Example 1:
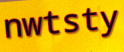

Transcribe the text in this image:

nwtsty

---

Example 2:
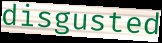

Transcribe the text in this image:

disgusted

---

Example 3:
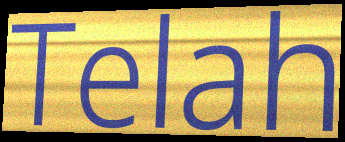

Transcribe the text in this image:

Telah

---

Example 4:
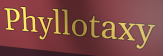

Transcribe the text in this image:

Phyllotaxy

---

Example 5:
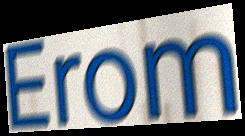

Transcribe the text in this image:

Erom